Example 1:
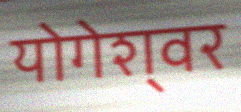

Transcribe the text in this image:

योगेश्वर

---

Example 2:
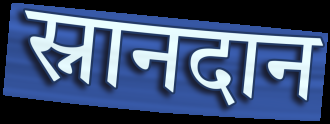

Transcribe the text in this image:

स्नानदान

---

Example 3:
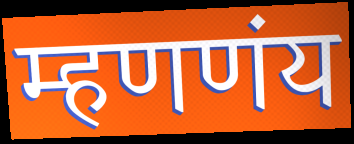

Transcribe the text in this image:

म्हणणंय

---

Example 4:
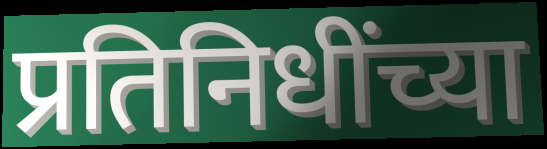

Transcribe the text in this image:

प्रतिनिधींच्या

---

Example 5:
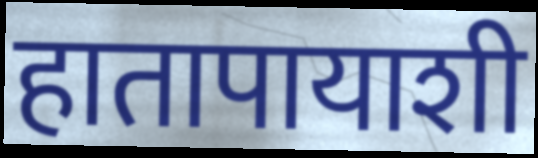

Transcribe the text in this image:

हातापायाशी